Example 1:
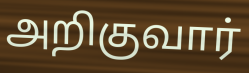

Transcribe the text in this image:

அறிகுவார்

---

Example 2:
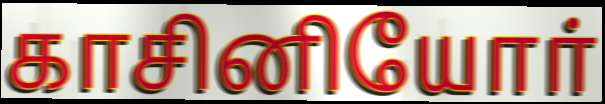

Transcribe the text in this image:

காசினியோர்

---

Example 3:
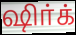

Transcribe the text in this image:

ஷிர்க்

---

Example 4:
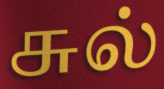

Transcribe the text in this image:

சுல்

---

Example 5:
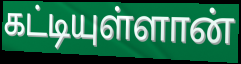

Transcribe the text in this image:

கட்டியுள்ளான்